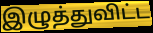
இழுத்துவிட்ட